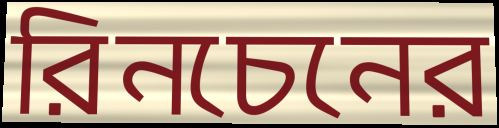
রিনচেনের